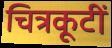
चित्रकूटीं